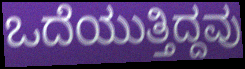
ಒದೆಯುತ್ತಿದ್ದವು